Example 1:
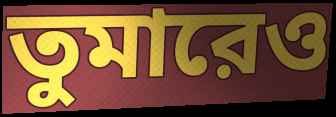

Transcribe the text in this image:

তুমারেও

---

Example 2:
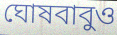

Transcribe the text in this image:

ঘোষবাবুও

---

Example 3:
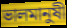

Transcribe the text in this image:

ভালমানুষী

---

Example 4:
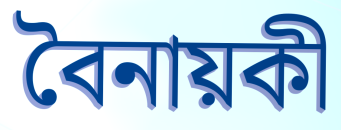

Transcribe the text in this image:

বৈনায়কী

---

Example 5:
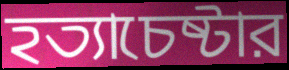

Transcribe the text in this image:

হত্যাচেষ্টার